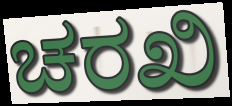
ಚರಖಿ